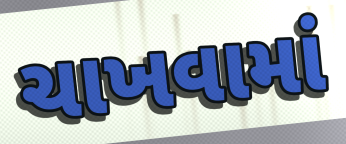
ચાખવામાં